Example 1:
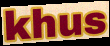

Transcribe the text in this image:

khus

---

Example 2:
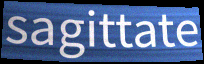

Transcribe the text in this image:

sagittate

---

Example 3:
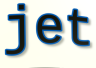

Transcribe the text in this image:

jet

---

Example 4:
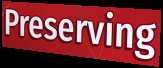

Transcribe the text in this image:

Preserving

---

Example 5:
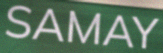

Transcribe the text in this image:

SAMAY